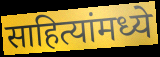
साहित्यांमध्ये